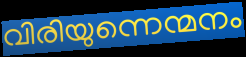
വിരിയുന്നെന്മനം